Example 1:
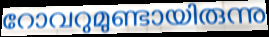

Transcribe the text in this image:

റോവറുമുണ്ടായിരുന്നു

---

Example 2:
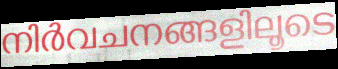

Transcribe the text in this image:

നിർവചനങ്ങളിലൂടെ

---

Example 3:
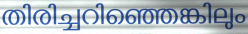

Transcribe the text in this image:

തിരിച്ചറിഞ്ഞെങ്കിലും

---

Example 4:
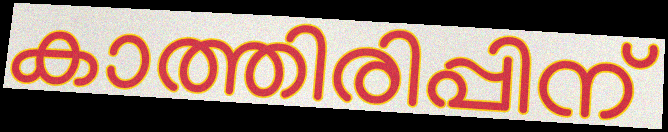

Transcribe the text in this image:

കാത്തിരിപ്പിന്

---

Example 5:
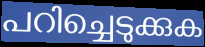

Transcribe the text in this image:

പറിച്ചെടുക്കുക